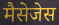
मैसेजेस